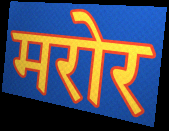
मरोर